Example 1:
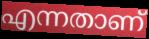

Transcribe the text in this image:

എന്നതാണ്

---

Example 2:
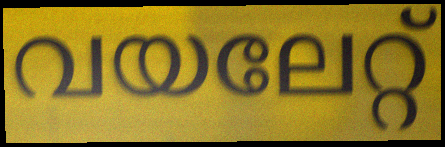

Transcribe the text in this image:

വയലേറ്റ്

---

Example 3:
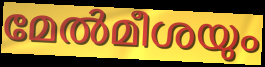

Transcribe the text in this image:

മേൽമീശയും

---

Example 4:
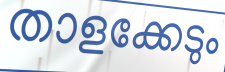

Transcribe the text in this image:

താളക്കേടും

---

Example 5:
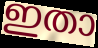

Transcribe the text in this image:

ഇതാ